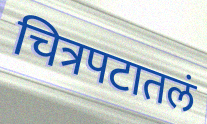
चित्रपटातलं